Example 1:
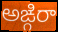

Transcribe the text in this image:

అఙ్గిరా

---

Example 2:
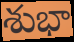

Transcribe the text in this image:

శుభా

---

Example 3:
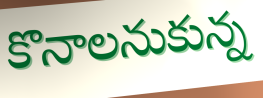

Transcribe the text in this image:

కొనాలనుకున్న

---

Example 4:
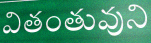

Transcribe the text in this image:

వితంతువుని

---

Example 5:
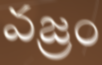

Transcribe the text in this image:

వజ్రం